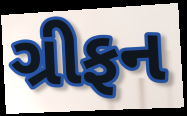
ગ્રીફન